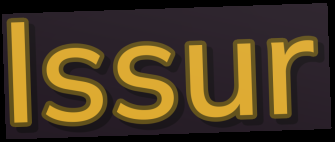
Issur